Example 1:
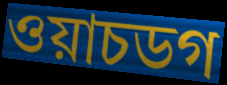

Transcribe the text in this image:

ওয়াচডগ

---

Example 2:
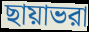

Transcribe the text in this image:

ছায়াভরা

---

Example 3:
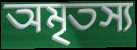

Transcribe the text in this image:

অমৃতস্য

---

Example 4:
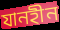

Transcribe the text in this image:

যানহীন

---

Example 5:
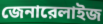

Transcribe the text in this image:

জেনারেলাইজ